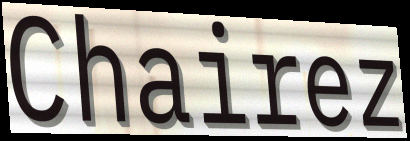
Chairez